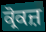
ਕ੍ਰੋਕਜ਼